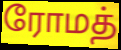
ரோமத்